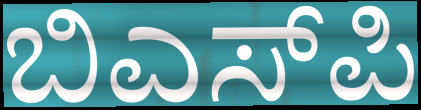
ಬಿಎಸ್‌ಪಿ